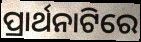
ପ୍ରାର୍ଥନାଟିରେ